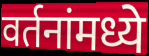
वर्तनांमध्ये